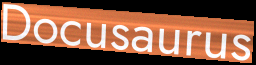
Docusaurus